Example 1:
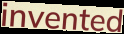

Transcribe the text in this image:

invented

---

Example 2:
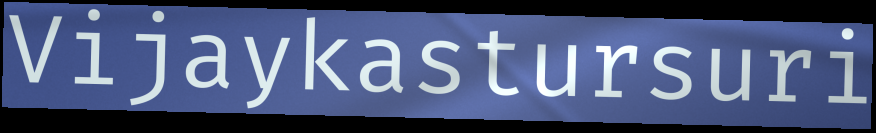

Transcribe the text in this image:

Vijaykastursuri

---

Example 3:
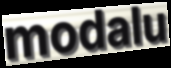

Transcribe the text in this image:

modalu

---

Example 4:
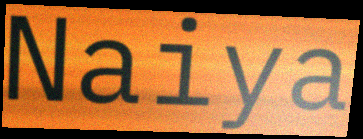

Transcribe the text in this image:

Naiya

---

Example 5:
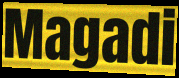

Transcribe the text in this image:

Magadi